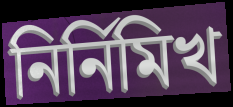
নির্নিমিখ